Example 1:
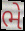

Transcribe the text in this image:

ભે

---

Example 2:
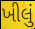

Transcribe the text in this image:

ખીલું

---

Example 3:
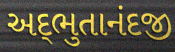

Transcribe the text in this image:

અદ્‌ભુતાનંદજી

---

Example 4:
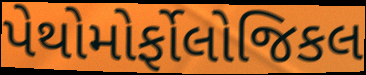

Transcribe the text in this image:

પેથોમોર્ફોલોજિકલ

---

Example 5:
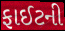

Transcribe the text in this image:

ફાઈટની